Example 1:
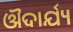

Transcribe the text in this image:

ଔଦାର୍ଯ୍ୟ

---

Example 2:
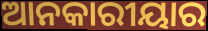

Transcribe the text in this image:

ଆନକାରୀୟାର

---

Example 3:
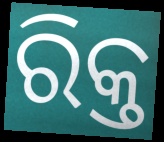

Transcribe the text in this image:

ରିକ୍ତ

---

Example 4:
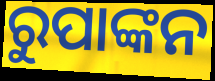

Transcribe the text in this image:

ରୁପାଙ୍କନ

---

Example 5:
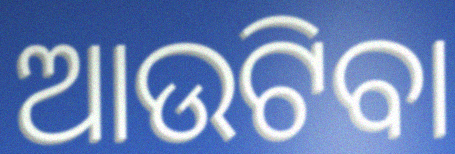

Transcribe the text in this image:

ଆଉଟିବା